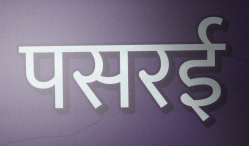
पसरई